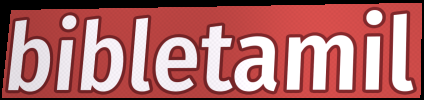
bibletamil